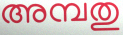
അമ്പതു